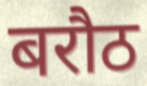
बरौठ